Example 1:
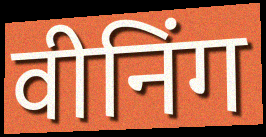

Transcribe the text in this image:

वीनिंग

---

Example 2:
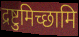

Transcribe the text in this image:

द्रष्टुमिच्छामि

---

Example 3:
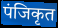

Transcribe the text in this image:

पंजिकृत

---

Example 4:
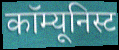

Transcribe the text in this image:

कॉम्यूनिस्ट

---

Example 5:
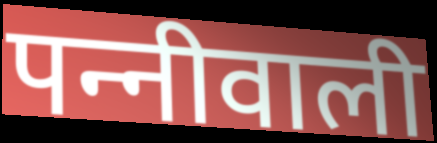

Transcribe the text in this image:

पन्नीवाली